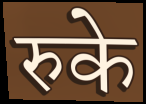
रुके